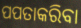
ପପତାକରିବା